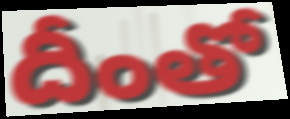
దీంతో